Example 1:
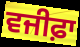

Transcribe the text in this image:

ਵਜੀਫ਼ਾ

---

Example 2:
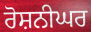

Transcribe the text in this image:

ਰੋਸ਼ਨੀਘਰ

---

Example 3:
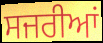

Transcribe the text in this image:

ਸਜਰੀਆਂ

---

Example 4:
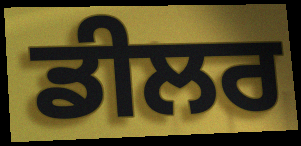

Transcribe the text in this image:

ਡੀਲਰ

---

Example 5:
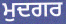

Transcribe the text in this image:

ਮੁਦਗਰ